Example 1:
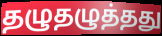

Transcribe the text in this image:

தழுதழுத்தது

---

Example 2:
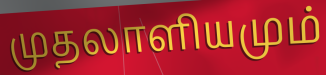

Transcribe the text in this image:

முதலாளியமும்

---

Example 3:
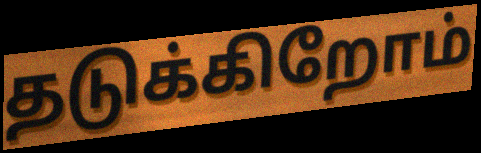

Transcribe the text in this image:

தடுக்கிறோம்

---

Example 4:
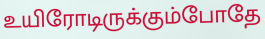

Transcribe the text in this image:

உயிரோடிருக்கும்போதே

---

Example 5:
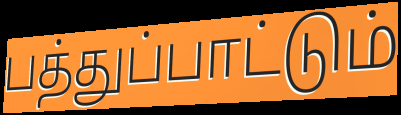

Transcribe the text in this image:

பத்துப்பாட்டும்